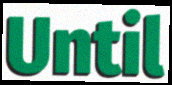
Until